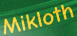
Mikloth